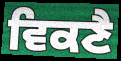
ਵਿਕਣੈ